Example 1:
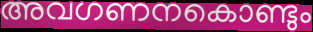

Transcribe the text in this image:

അവഗണനകൊണ്ടും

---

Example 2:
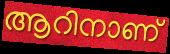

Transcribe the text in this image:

ആറിനാണ്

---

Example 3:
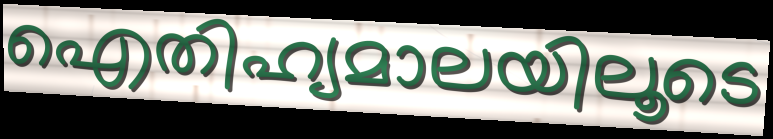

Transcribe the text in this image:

ഐതിഹ്യമാലയിലൂടെ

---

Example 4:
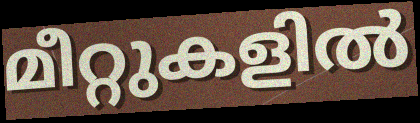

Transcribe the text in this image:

മീറ്റുകളിൽ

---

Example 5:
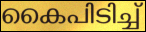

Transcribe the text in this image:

കൈപിടിച്ച്